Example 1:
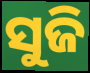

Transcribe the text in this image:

ସୁଜି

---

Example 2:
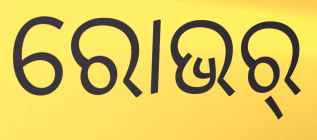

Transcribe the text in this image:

ରୋଭର୍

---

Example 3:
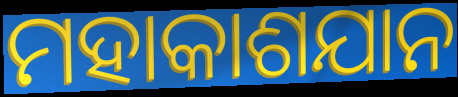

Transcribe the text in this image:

ମହାକାଶଯାନ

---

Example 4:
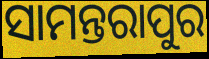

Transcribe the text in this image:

ସାମନ୍ତରାପୁର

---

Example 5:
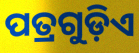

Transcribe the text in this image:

ପତ୍ରଗୁଡ଼ିଏ